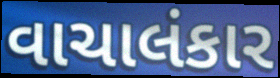
વાચાલંકાર